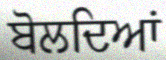
ਬੋਲਦਿਆਂ